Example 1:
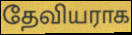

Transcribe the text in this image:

தேவியராக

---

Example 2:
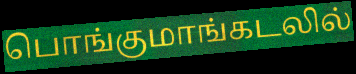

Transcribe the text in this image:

பொங்குமாங்கடலில்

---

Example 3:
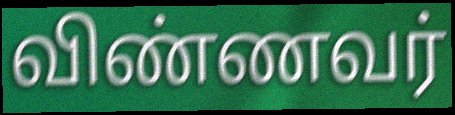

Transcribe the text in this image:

விண்ணவர்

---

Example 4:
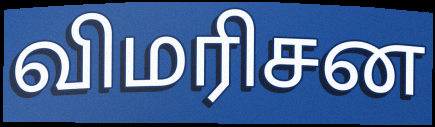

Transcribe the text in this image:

விமரிசன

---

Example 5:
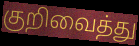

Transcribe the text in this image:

குறிவைத்து